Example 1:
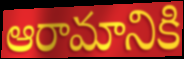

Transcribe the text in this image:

ఆరామానికి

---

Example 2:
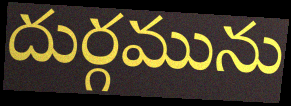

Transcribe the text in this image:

దుర్గమును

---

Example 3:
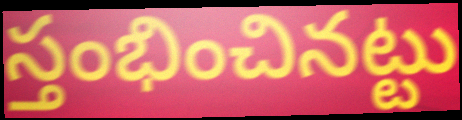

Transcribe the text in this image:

స్తంభించినట్టు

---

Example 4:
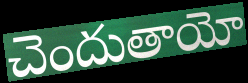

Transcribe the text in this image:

చెందుతాయో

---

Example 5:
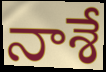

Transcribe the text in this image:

నాశే